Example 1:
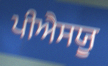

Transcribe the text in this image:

ਪੀਐਸਯੂ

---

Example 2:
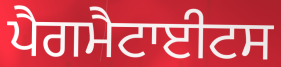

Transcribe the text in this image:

ਪੈਗਮੈਟਾਈਟਸ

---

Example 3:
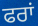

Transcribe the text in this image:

ਫਰਾਂ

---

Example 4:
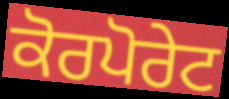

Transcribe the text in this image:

ਕੋਰਪੋਰੇਟ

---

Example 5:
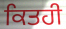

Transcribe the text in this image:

ਕਿਤਹੀ